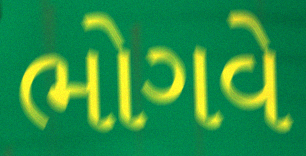
ભોગવે